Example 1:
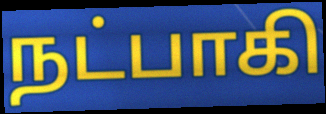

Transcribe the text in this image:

நட்பாகி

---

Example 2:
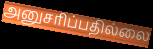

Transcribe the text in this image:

அனுசரிப்பதில்லை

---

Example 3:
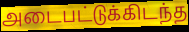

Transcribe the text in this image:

அடைபட்டுக்கிடந்த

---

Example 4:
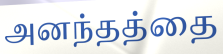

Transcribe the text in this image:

அனந்தத்தை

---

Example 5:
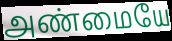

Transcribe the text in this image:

அண்மையே